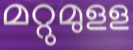
മറ്റുമുളള